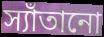
স্যাঁতানো